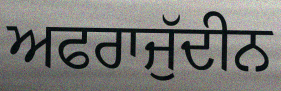
ਅਫਰਾਜੁੱਦੀਨ